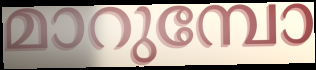
മാറുമ്പോ